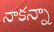
నాకన్నా